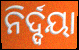
ନିର୍ଦ୍ଦୟା